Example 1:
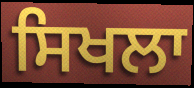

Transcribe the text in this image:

ਸਿਖਲਾ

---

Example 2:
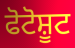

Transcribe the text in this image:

ਫੋਟੋਸ਼ੂਟ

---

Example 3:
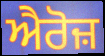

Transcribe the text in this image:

ਐਰੋਜ਼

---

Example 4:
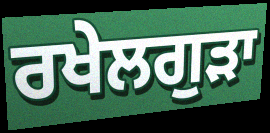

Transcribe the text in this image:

ਰਖੇਲਗੁੜਾ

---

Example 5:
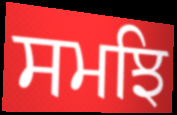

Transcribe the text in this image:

ਸਮਝਿ